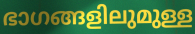
ഭാഗങ്ങളിലുമുള്ള